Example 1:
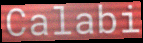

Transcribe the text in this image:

Calabi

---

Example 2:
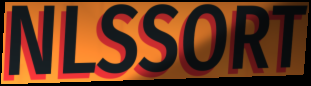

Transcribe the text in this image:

NLSSORT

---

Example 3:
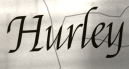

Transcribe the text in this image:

Hurley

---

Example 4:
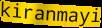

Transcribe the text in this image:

kiranmayi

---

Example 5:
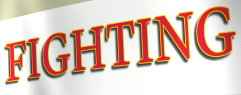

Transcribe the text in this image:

FIGHTING